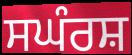
ਸਘੰਰਸ਼